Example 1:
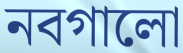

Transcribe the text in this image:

নবগালো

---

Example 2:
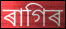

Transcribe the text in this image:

ৰাগিৰ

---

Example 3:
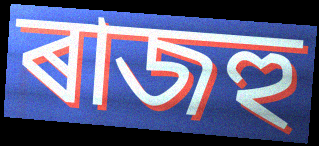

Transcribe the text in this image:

ৰাজহু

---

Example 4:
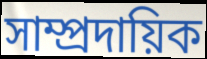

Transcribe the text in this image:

সাম্প্ৰদায়িক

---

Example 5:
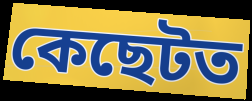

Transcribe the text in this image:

কেছেটত